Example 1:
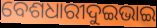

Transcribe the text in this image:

ବେଶଧାରୀଦୁଇଭାଇ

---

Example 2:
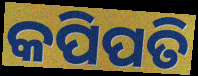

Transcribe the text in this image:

କପିପତି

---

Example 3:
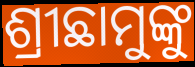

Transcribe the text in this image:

ଶ୍ରୀଛାମୁଙ୍କୁ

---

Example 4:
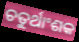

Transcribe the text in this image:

ଚତୁର୍ଥାଂଶକ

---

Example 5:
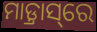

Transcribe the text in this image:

ମାଡ଼୍ରାସ୍‌ରେ